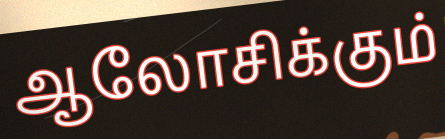
ஆலோசிக்கும்